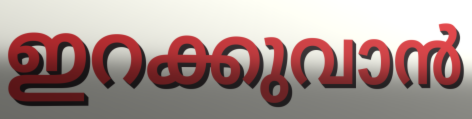
ഇറക്കുവാൻ